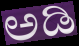
ಅಡಿ